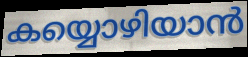
കയ്യൊഴിയാൻ